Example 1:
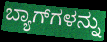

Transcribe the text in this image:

ಬ್ಯಾಗ್‍ಗಳನ್ನು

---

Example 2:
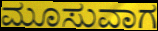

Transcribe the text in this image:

ಮೂಸುವಾಗ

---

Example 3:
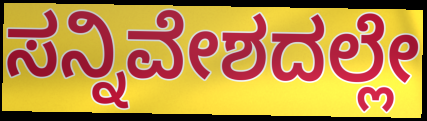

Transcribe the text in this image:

ಸನ್ನಿವೇಶದಲ್ಲೇ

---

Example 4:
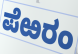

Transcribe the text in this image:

ಪೆಱರಂ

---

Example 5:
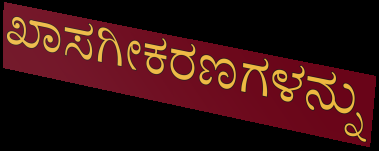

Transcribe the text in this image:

ಖಾಸಗೀಕರಣಗಳನ್ನು